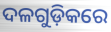
ଦଳଗୁଡ଼ିକରେ